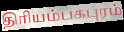
திரியம்பகபுரம்